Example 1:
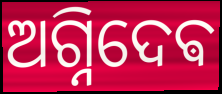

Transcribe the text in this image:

ଅଗ୍ନିଦେଵ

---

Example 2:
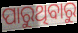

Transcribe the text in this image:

ପାରୁଥିବାରୁ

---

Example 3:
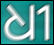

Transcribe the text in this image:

ଧୀ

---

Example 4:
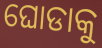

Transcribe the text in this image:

ଘୋଡାକୁ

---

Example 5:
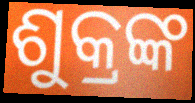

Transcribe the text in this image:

ଶୁକ୍ରଙ୍କ